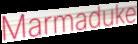
Marmaduke